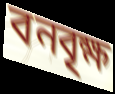
বনবৃক্ষ